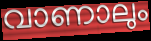
വാണാലും